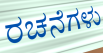
ರಚನೆಗಳು